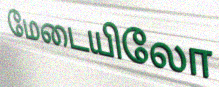
மேடையிலோ